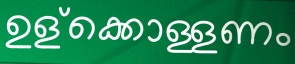
ഉള്ക്കൊള്ളണം